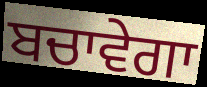
ਬਚਾਵੇਗਾ